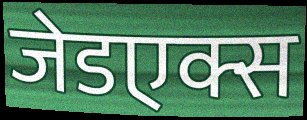
जेडएक्स